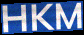
HKM